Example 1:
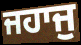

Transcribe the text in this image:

ਜਹਾਜੁ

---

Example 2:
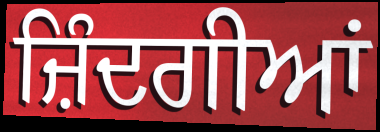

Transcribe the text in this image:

ਜ਼ਿੰਦਗੀਆਂ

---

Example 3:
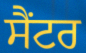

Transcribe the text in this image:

ਸੈਂਟਰ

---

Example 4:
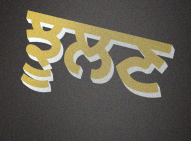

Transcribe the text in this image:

ਝੂਲਣ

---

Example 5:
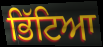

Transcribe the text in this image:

ਭਿੱਟਿਆ